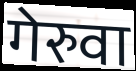
गेरुवा